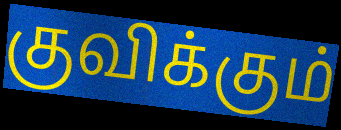
குவிக்கும்